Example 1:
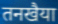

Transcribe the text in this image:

तनखैया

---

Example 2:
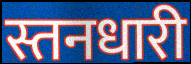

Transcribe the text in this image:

स्तनधारी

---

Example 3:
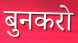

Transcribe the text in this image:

बुनकरो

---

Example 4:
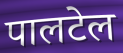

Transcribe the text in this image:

पालटेल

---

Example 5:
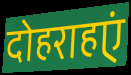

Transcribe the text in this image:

दोहराहएं